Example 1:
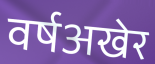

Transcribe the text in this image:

वर्षअखेर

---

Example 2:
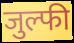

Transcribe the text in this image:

जुल्फी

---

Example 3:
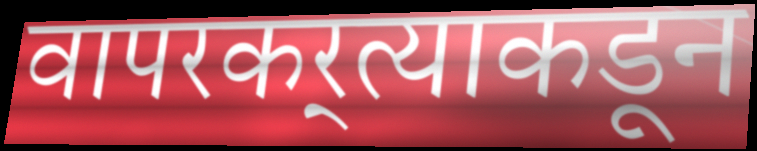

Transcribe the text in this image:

वापरकर्त्याकडून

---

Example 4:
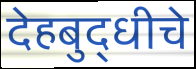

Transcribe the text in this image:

देहबुद्धीचे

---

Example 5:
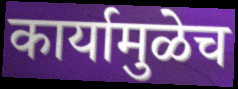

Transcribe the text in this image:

कार्यामुळेच